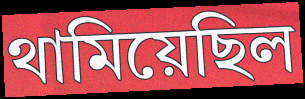
থামিয়েছিল